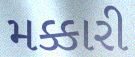
મક્કારી